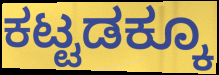
ಕಟ್ಟಡಕ್ಕೂ